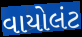
વાયોલંટ